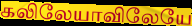
கலிலேயாவிலேயே